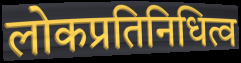
लोकप्रतिनिधित्व